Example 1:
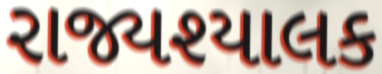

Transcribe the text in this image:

રાજ્યશ્યાલક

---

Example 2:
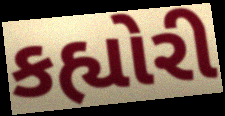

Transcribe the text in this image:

કહ્યોરી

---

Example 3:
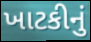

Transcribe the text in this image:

ખાટકીનું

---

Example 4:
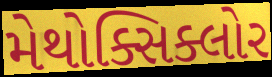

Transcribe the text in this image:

મેથોક્સિક્લોર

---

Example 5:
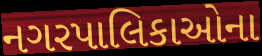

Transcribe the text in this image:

નગરપાલિકાઓના